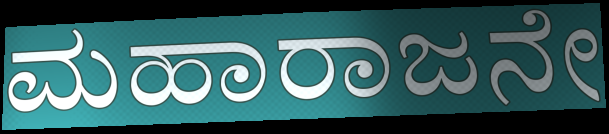
ಮಹಾರಾಜನೇ